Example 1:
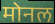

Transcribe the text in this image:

मोनल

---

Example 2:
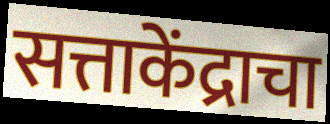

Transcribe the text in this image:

सत्ताकेंद्राचा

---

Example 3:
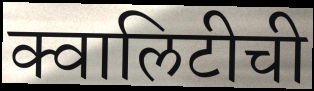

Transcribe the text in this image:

क्वालिटीची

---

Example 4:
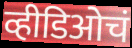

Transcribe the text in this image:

व्हीडिओचं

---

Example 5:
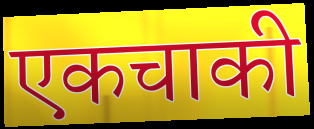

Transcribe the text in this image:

एकचाकी